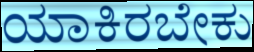
ಯಾಕಿರಬೇಕು